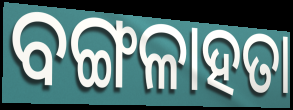
ବଙ୍ଗଳାହତା